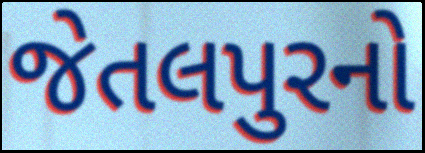
જેતલપુરનો